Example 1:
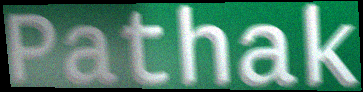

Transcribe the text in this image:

Pathak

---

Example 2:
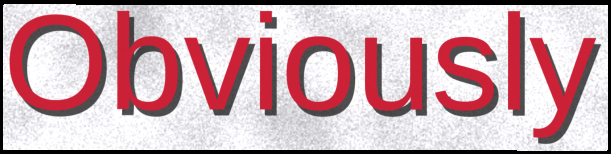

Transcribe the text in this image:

Obviously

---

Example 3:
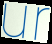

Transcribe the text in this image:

ur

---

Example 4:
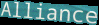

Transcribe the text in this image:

Alliance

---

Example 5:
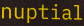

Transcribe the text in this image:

nuptial